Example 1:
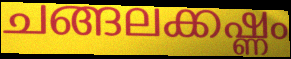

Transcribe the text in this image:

ചങ്ങലക്കഷ്ണം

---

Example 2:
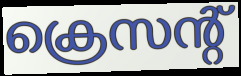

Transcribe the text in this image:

ക്രെസന്റ്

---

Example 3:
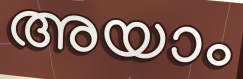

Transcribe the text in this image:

അയാം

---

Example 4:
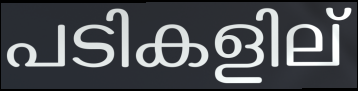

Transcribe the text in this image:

പടികളില്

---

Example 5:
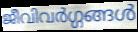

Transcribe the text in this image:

ജീവിവർഗ്ഗങ്ങൾ